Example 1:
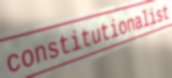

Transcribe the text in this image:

constitutionalist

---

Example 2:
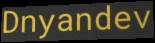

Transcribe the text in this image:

Dnyandev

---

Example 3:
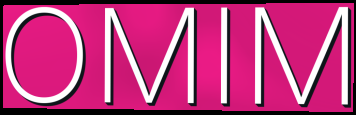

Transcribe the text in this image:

OMIM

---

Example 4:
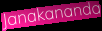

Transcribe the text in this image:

Janakananda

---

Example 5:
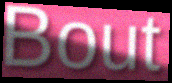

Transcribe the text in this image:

Bout